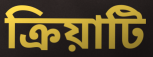
ক্রিয়াটি